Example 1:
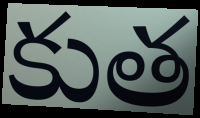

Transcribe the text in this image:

కుత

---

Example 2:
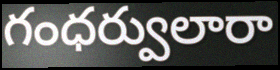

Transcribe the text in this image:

గంధర్వులారా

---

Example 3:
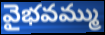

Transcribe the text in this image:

వైభవమ్ము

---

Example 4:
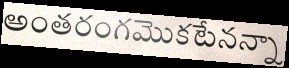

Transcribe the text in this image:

అంతరంగమొకటేనన్నా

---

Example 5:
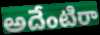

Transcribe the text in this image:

అదేంటిరా